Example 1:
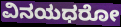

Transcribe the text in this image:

ವಿನಯಧರೋ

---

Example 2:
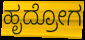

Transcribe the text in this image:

ಹೃದ್ರೋಗ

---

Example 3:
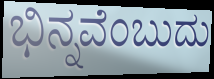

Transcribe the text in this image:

ಭಿನ್ನವೆಂಬುದು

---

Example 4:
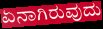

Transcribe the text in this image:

ಏನಾಗಿರುವುದು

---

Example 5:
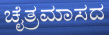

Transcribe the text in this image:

ಚೈತ್ರಮಾಸದ